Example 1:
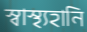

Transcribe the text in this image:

স্বাস্থ্যহানি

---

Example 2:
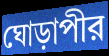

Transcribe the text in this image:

ঘোড়াপীর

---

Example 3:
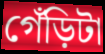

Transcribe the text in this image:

গেঁড়িটা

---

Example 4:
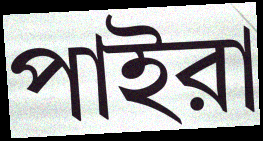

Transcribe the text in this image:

পাইরা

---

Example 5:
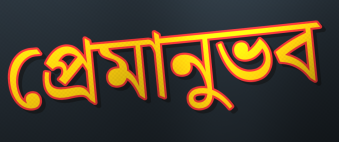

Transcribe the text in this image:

প্রেমানুভব